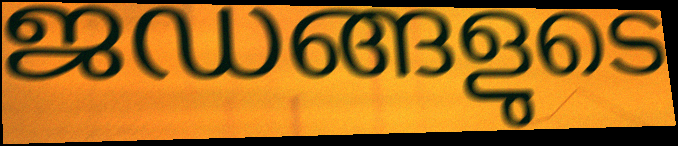
ജഡങ്ങളുടെ